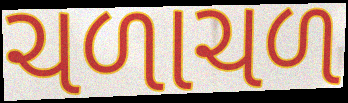
ચળાચળ